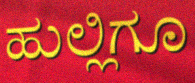
ಹುಲ್ಲಿಗೂ